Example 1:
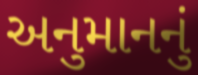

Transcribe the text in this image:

અનુમાનનું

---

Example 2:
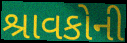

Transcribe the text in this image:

શ્રાવકોની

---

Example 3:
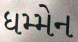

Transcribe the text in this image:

ધમ્મેન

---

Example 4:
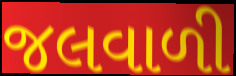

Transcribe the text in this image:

જલવાળી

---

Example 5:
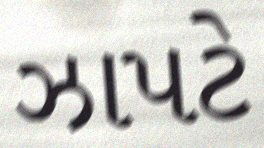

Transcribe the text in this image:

ઝાપટે